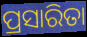
ପ୍ରସାରିତା